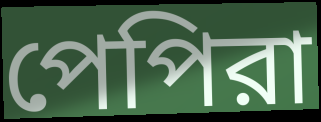
পেপিরা